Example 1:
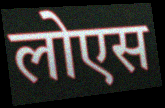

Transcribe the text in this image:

लोएस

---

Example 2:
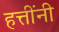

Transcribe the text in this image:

हत्तींनी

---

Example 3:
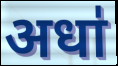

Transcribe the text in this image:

अधा॑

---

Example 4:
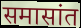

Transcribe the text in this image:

समासांत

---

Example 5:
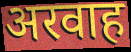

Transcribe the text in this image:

अरवाह